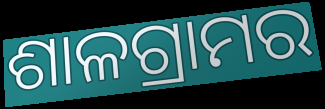
ଶାଳଗ୍ରାମର